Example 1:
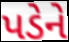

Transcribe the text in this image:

પડેને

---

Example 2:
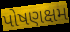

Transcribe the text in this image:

પોષણક્ષમ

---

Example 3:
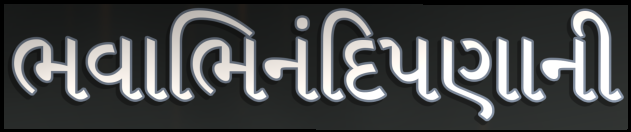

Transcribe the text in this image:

ભવાભિનંદિપણાની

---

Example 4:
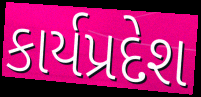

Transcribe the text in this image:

કાર્યપ્રદેશ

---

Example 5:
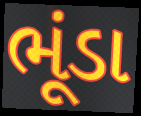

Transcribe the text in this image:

ભૂંડા